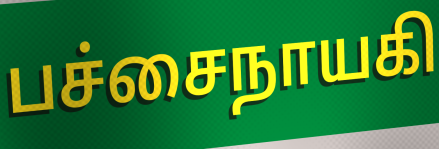
பச்சைநாயகி